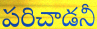
పరిచాడనీ